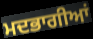
ਮਦਭਾਗੀਆਂ